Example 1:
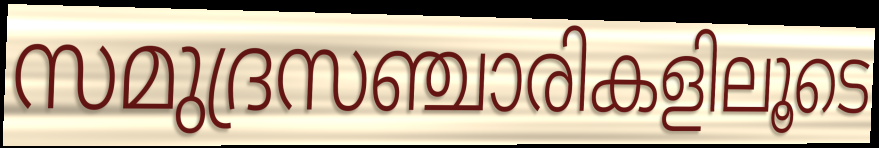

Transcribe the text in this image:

സമുദ്രസഞ്ചാരികളിലൂടെ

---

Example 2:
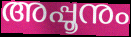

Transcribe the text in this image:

അപ്പൂനും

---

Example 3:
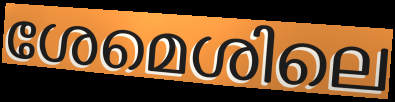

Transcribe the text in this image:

ശേമെശിലെ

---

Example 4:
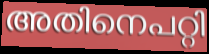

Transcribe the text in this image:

അതിനെപറ്റി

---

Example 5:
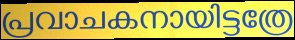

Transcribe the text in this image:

പ്രവാചകനായിട്ടത്രേ